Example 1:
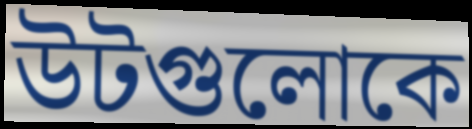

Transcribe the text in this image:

উটগুলোকে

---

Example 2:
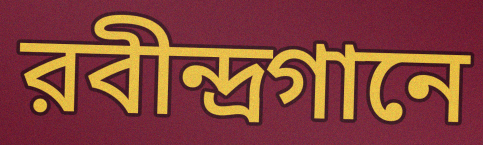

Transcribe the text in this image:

রবীন্দ্রগানে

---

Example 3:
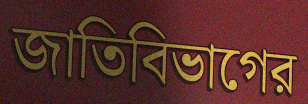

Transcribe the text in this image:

জাতিবিভাগের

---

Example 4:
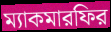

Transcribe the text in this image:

ম্যাকমারফির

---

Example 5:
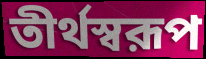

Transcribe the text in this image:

তীর্থস্বরূপ